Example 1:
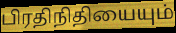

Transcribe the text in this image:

பிரதிநிதியையும்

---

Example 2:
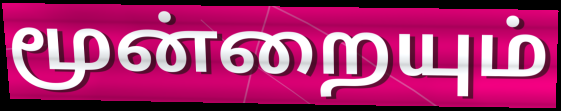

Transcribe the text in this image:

மூன்றையும்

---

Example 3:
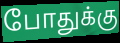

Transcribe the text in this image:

போதுக்கு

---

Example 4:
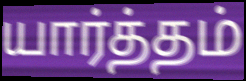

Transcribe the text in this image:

யார்த்தம்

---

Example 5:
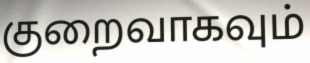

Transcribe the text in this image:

குறைவாகவும்